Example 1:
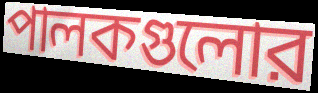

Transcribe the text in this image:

পালকগুলোর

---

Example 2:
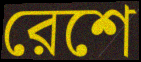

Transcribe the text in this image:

রেশে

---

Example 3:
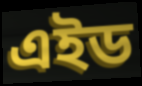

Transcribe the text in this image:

এইড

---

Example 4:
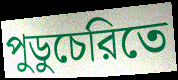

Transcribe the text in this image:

পুডুচেরিতে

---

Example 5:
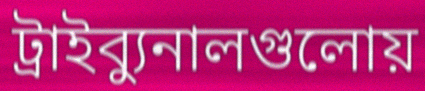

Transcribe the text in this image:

ট্রাইব্যুনালগুলোয়